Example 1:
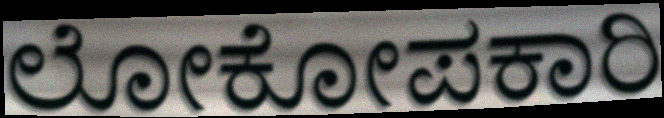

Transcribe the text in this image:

ಲೋಕೋಪಕಾರಿ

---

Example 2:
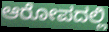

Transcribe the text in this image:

ಆರೋಪದಲ್ಲಿ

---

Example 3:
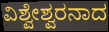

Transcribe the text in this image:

ವಿಶ್ವೇಶ್ವರನಾದ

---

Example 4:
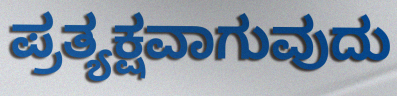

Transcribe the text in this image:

ಪ್ರತ್ಯಕ್ಷವಾಗುವುದು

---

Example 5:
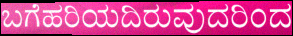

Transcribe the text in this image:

ಬಗೆಹರಿಯದಿರುವುದರಿಂದ